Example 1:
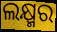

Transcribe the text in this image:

ଲକ୍ଷ୍ମର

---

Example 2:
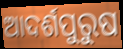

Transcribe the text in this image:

ଆଦର୍ଶପୁରୁଷ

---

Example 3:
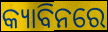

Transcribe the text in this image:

କ୍ୟାବିନରେ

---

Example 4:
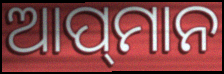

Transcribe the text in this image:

ଆପ୍‌ମାନ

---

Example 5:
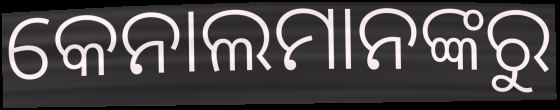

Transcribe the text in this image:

କେନାଲମାନଙ୍କରୁ